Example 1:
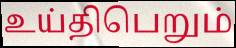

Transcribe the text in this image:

உய்திபெறும்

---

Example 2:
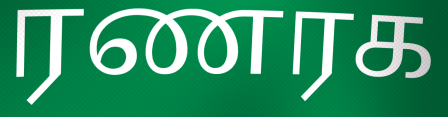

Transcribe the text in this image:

ரணரக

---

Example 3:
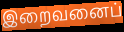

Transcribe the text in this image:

இறைவனைப்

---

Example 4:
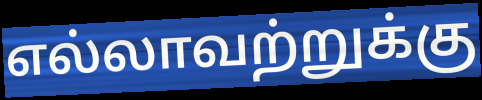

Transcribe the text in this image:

எல்லாவற்றுக்கு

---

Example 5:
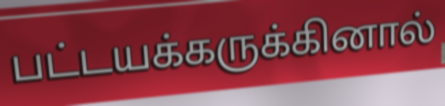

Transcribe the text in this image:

பட்டயக்கருக்கினால்